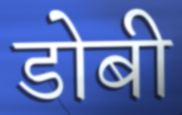
डोबी